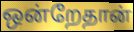
ஒன்றேதான்